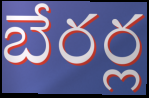
బేరర్ల